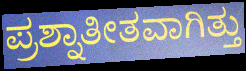
ಪ್ರಶ್ನಾತೀತವಾಗಿತ್ತು